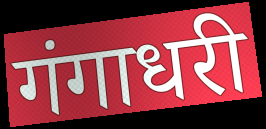
गंगाधरी